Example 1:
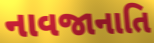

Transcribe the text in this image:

નાવજાનાતિ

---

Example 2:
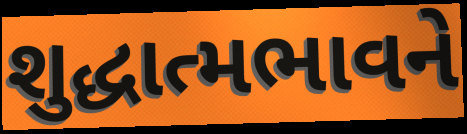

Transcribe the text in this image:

શુદ્ધાત્મભાવને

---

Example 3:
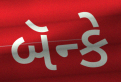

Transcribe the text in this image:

બૅન્કે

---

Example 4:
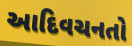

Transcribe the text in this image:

આદિવચનતો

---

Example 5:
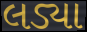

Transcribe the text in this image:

લડ્યા